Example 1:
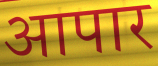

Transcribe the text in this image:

आपार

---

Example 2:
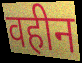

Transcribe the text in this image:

वहीन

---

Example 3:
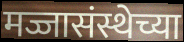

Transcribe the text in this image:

मज्जासंस्थेच्या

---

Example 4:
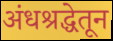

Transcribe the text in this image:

अंधश्रद्धेतून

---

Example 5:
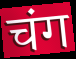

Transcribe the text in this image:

चंग